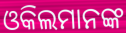
ଓକିଲମାନଙ୍କ